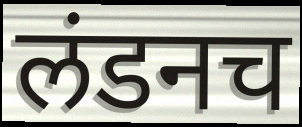
लंडनच